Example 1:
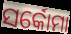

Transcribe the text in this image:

ସର୍କୋମା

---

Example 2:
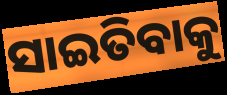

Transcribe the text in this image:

ସାଇତିବାକୁ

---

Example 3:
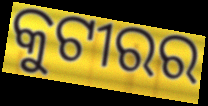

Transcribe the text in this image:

କୁଟୀରର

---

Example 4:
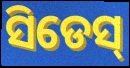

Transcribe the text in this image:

ସିଡେସ୍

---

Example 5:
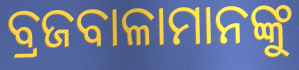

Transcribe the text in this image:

ବ୍ରଜବାଳାମାନଙ୍କୁ